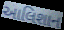
આલિશાન